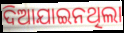
ଦିଆଯାଇନଥିଲା